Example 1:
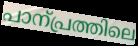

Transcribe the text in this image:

പാന്പ്രത്തിലെ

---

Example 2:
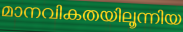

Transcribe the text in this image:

മാനവികതയിലൂന്നിയ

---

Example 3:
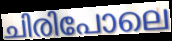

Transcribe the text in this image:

ചിരിപോലെ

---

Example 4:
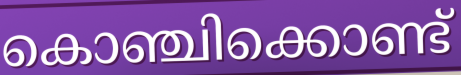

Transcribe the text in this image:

കൊഞ്ചിക്കൊണ്ട്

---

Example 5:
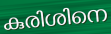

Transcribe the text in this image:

കുരിശിനെ